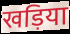
खड़िया